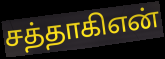
சத்தாகிஎன்